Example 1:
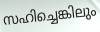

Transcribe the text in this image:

സഹിച്ചെങ്കിലും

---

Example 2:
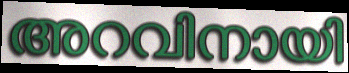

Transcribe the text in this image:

അറവിനായി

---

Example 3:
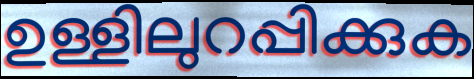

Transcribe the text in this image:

ഉള്ളിലുറപ്പിക്കുക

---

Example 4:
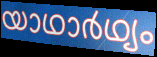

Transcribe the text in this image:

യാഥാർഥ്യം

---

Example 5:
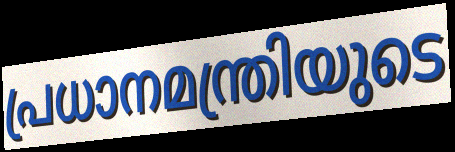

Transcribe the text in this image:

പ്രധാനമന്ത്രിയുടെ